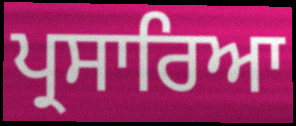
ਪ੍ਰਸਾਰਿਆ